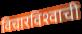
विचारविश्वाची